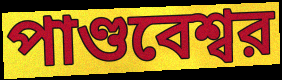
পাণ্ডবেশ্বর